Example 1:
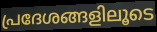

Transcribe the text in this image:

പ്രദേശങ്ങളിലൂടെ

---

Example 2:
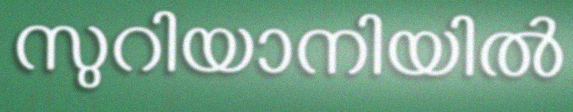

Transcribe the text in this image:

സുറിയാനിയിൽ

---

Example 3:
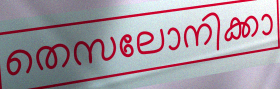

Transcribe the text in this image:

തെസലോനിക്കാ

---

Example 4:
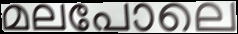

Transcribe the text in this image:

മലപോലെ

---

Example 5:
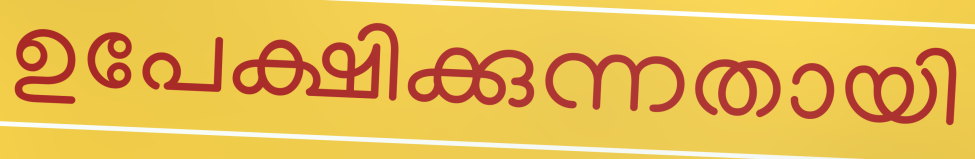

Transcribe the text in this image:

ഉപേക്ഷിക്കുന്നതായി